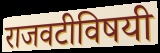
राजवटीविषयी